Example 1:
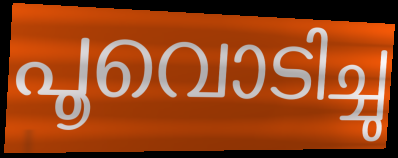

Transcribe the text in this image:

പൂവൊടിച്ചു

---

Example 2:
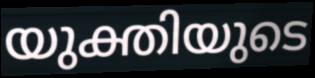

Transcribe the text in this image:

യുക്തിയുടെ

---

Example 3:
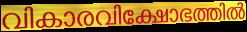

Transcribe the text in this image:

വികാരവിക്ഷോഭത്തിൽ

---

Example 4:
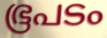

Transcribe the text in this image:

ഭൂപടം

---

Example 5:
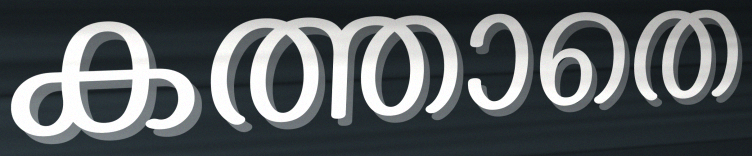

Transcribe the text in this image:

കത്താതെ